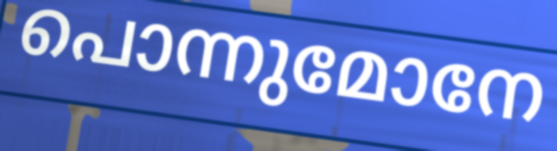
പൊന്നുമോനേ